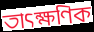
তাৎক্ষণিক